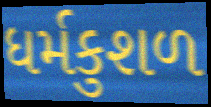
ધર્મકુશળ